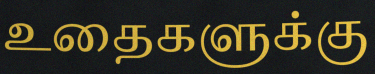
உதைகளுக்கு